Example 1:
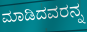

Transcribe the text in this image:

ಮಾಡಿದವರನ್ನ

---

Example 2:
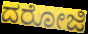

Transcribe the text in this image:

ದರೋಜಿ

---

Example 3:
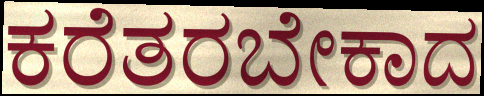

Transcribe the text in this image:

ಕರೆತರಬೇಕಾದ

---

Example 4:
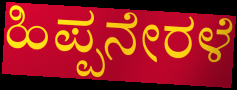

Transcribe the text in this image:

ಹಿಪ್ಪನೇರಳೆ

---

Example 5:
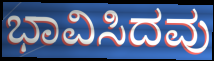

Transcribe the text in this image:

ಭಾವಿಸಿದವು